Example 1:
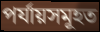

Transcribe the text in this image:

পৰ্যায়সমূহত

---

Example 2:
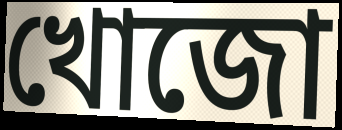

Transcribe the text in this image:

খোজো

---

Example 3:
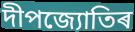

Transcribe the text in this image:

দীপজ্যোতিৰ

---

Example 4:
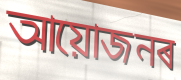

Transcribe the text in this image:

আয়োজনৰ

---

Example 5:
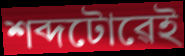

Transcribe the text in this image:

শব্দটোৱেই